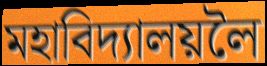
মহাবিদ্যালয়লৈ